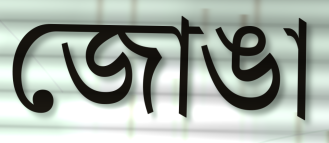
জোঙা